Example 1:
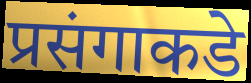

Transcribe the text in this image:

प्रसंगाकडे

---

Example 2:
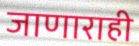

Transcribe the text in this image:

जाणाराही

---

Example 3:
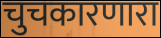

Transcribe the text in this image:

चुचकारणारा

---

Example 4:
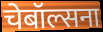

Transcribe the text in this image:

चेबॉल्सना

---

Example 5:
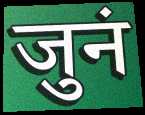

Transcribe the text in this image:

जुनं